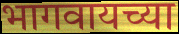
भागवायच्या